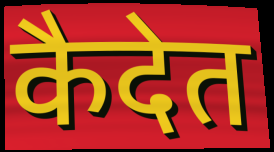
कैदेत